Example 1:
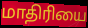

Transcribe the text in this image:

மாதிரியை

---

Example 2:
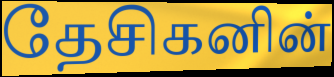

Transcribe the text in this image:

தேசிகனின்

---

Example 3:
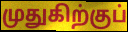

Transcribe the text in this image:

முதுகிற்குப்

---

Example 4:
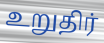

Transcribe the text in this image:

உறுதிர்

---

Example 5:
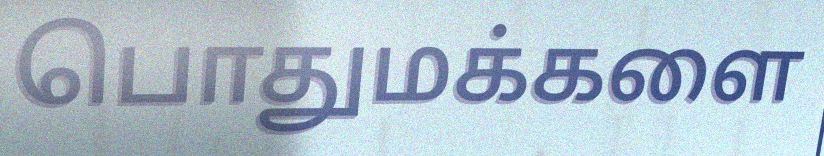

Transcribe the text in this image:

பொதுமக்களை